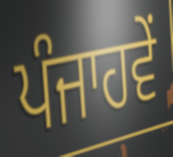
ਪੰਜਾਹਵੇਂ